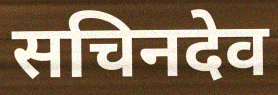
सचिनदेव